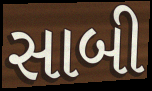
સાબી